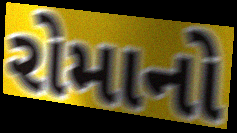
રોમાનો